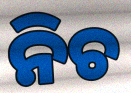
ନିଚ